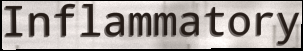
Inflammatory